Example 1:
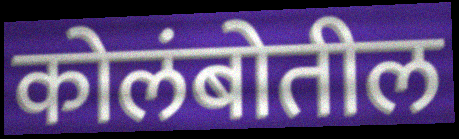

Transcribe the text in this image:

कोलंबोतील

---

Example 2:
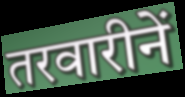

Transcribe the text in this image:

तरवारीनें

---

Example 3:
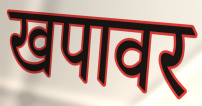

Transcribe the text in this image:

खपावर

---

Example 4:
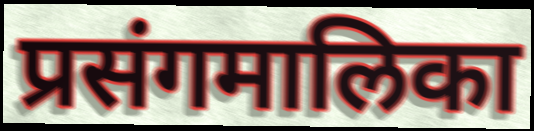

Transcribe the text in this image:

प्रसंगमालिका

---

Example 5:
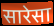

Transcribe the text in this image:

सारेसा